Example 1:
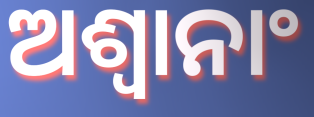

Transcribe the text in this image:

ଅଶ୍ଵାନାଂ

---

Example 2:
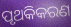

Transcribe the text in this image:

ପୃଥକିକରଣ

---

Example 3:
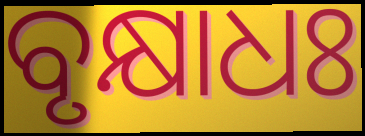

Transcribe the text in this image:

ବୃକ୍ଷାଧଃ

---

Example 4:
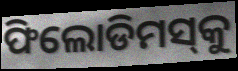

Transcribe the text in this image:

ଫିଲୋଡିମସ୍‌କୁ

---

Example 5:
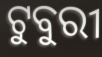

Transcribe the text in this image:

ଟୁବୁରୀ